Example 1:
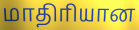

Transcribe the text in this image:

மாதிரியான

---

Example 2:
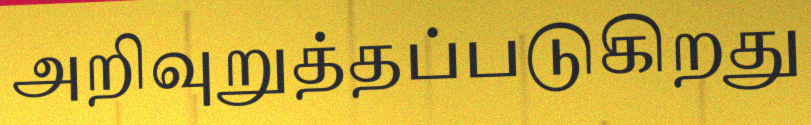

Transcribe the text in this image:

அறிவுறுத்தப்படுகிறது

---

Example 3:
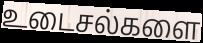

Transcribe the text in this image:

உடைசல்களை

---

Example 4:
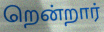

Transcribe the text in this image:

றென்றார்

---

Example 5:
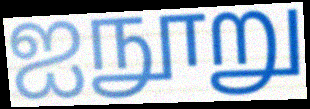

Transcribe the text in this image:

ஐநூறு